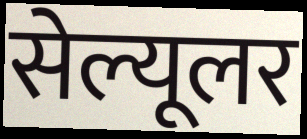
सेल्यूलर